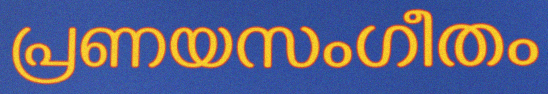
പ്രണയസംഗീതം